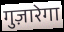
गुज़ारेगा